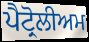
ਪੈਟ੍ਰੋਲੀਅਮ